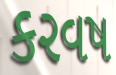
કરવષ